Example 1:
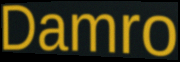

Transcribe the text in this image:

Damro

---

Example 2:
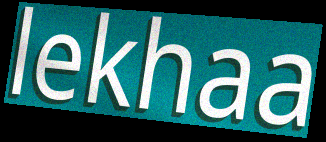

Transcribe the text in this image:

lekhaa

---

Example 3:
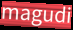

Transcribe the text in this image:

magudi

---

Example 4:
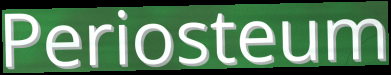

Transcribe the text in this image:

Periosteum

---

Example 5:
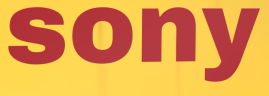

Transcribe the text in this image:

sony